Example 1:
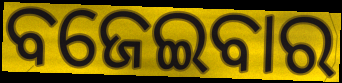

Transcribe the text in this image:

ବଜେଇବାର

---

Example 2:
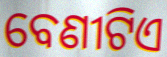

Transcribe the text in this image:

ବେଣୀଟିଏ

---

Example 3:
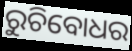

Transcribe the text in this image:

ରୁଚିବୋଧର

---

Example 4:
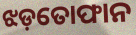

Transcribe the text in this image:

ଝଡ଼ତୋଫାନ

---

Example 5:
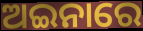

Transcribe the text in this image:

ଅଇନାରେ